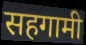
सहगामी